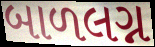
બાળલગ્ન